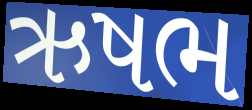
ઋષભ